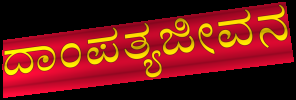
ದಾಂಪತ್ಯಜೀವನ